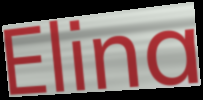
Elina